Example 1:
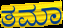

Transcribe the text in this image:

ತಮಾ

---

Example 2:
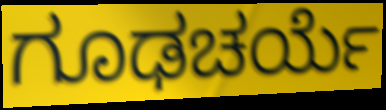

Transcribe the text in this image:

ಗೂಢಚರ್ಯೆ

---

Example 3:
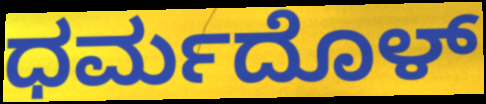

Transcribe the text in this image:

ಧರ್ಮದೊಳ್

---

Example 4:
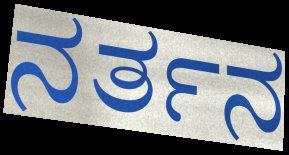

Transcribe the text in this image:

ನರ್ತನ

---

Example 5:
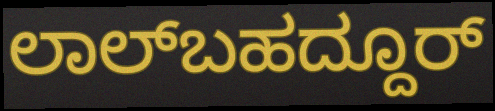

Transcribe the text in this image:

ಲಾಲ್‌ಬಹದ್ದೂರ್